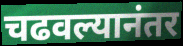
चढवल्यानंतर